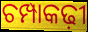
ଚମ୍ପାକଢ଼ୀ